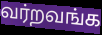
வர்றவங்க